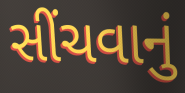
સીંચવાનું